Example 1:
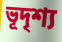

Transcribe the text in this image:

ভূদৃশ্য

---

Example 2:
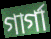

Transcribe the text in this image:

গার্গা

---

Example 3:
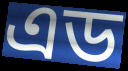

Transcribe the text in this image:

এড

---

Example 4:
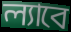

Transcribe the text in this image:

ল্যাবে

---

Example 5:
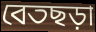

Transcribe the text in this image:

বেতছড়া